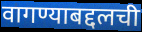
वागण्याबद्दलची